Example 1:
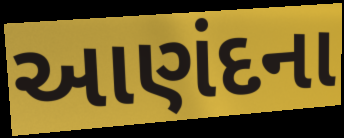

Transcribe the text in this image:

આણંદના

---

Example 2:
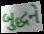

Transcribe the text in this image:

બુદ્ધને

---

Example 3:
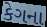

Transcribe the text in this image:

કેગના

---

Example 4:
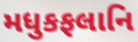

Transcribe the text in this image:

મધુકફલાનિ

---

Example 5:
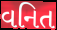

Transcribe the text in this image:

વનિત